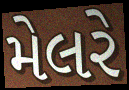
મેલરે